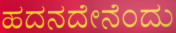
ಹದನದೇನೆಂದು